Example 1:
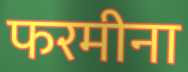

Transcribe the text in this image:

फरमीना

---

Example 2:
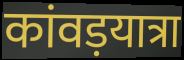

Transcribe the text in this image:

कांवड़यात्रा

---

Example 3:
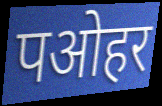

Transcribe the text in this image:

पओहर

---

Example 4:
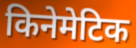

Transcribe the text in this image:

किनेमेटिक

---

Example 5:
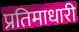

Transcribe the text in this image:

प्रतिमाधारी